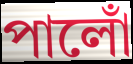
পালোঁ